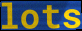
lots